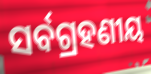
ସର୍ବଗ୍ରହଣୀୟ